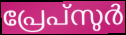
പ്രേപ്സുർ